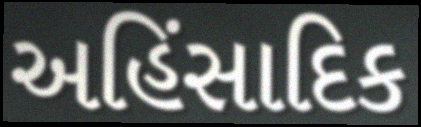
અહિંસાદિક